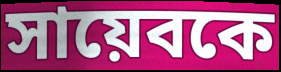
সায়েবকে